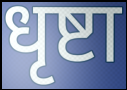
धृष्टा